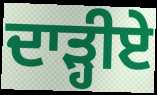
ਦਾੜ੍ਹੀਏ